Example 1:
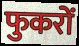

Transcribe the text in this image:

फुकरों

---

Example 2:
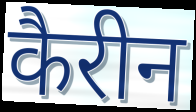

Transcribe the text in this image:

कैरीन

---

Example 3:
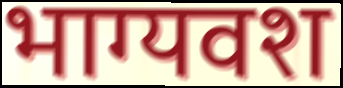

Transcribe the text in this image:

भाग्यवश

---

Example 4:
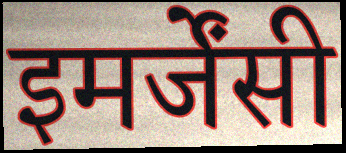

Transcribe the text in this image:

इमर्जेंसी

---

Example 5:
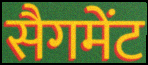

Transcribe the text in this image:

सैगमेंट